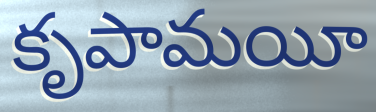
కృపామయీ